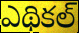
ఎథికల్